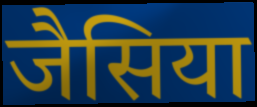
जैसिया